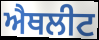
ਐਥਲੀਟ